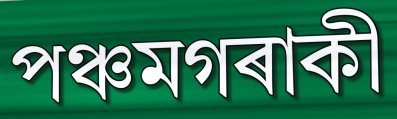
পঞ্চমগৰাকী